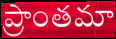
ప్రాంతమా